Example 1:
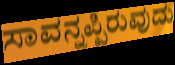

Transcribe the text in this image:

ಸಾವನ್ನಪ್ಪಿರುವುದು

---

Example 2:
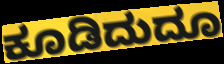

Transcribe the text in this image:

ಕೂಡಿದುದೂ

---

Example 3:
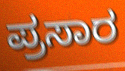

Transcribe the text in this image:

ಪ್ರಸಾರ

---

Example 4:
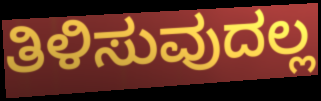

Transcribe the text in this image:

ತಿಳಿಸುವುದಲ್ಲ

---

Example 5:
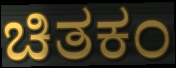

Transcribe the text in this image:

ಚಿತಕಂ